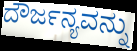
ದೌರ್ಜನ್ಯವನ್ನು